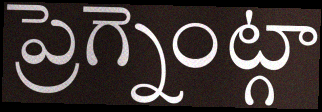
ప్రెగ్నెంట్గా